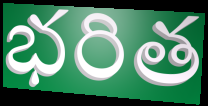
భరిత